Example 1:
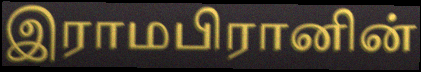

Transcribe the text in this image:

இராமபிரானின்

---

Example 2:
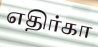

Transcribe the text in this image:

எதிர்கா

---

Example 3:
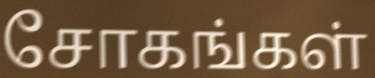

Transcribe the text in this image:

சோகங்கள்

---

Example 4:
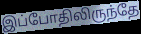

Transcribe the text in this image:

இப்போதிலிருந்தே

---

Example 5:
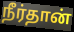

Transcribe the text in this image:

நீர்தான்